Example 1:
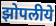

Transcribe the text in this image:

झोपलीये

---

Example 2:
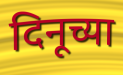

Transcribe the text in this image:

दिनूच्या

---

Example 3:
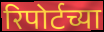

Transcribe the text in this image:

रिपोर्टच्या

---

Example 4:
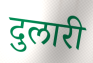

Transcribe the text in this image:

दुलारी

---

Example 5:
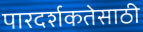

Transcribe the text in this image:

पारदर्शकतेसाठी